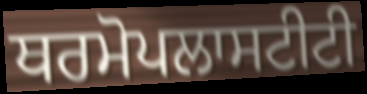
ਥਰਮੋਪਲਾਸਟੀਟੀ